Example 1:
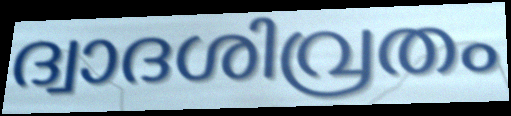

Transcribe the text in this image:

ദ്വാദശിവ്രതം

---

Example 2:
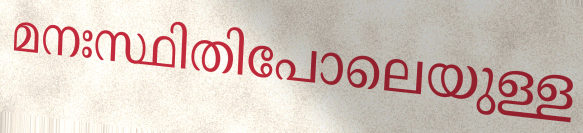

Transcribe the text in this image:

മനഃസ്ഥിതിപോലെയുള്ള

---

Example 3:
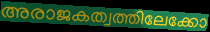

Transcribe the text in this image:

അരാജകത്വത്തിലേക്കോ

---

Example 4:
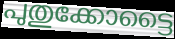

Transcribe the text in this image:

പുതുക്കോട്ടൈ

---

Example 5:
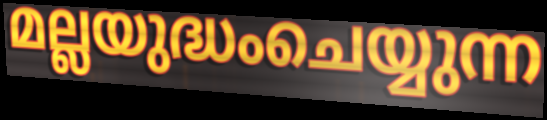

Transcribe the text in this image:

മല്ലയുദ്ധംചെയ്യുന്ന